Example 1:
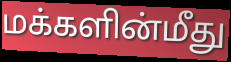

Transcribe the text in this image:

மக்களின்மீது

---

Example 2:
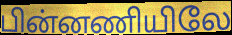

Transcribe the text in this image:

பின்னணியிலே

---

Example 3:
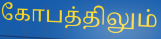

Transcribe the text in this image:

கோபத்திலும்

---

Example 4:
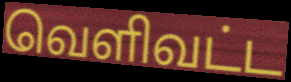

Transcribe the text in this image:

வெளிவட்ட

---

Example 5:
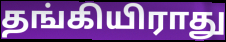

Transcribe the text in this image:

தங்கியிராது